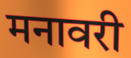
मनावरी